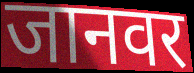
जानवर